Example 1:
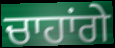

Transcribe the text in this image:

ਚਾਹਾਂਗੇ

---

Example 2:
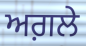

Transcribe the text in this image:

ਅਗ਼ਲੇ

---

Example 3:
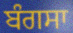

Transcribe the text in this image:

ਬੰਗਸਾ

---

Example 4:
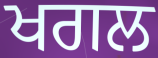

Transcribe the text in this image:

ਖਗਲ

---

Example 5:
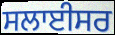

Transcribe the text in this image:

ਸਲਾਈਸਰ